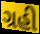
ગ્રહી